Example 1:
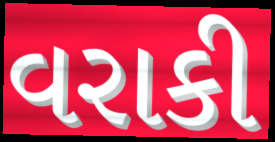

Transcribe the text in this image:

વરાકી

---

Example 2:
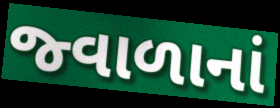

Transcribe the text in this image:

જ્વાળાનાં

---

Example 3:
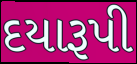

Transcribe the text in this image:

દયારૂપી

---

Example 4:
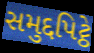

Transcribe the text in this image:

સમુદ્દપિટ્ઠે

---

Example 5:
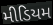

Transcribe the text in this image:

મીડિયમ